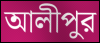
আলীপুর